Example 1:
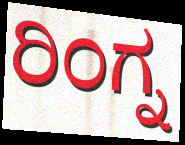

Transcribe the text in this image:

ರಿಂಗ್ನ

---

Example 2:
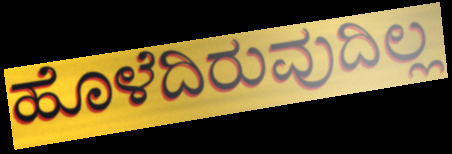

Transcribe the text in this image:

ಹೊಳೆದಿರುವುದಿಲ್ಲ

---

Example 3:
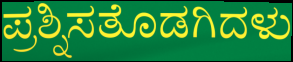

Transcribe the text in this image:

ಪ್ರಶ್ನಿಸತೊಡಗಿದಳು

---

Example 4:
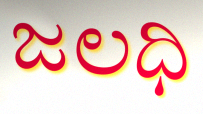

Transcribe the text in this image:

ಜಲಧಿ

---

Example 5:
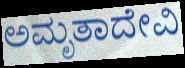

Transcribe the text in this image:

ಅಮೃತಾದೇವಿ